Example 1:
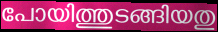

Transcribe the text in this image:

പോയിത്തുടങ്ങിയതു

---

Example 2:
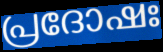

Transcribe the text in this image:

പ്രദോഷഃ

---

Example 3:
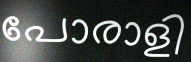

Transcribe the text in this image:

പോരാളി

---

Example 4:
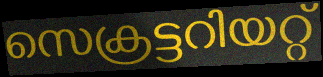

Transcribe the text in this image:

സെക്രട്ടറിയറ്റ്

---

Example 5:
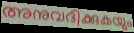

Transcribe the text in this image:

അനുവദിക്കുകയും